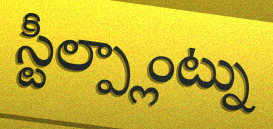
స్టీల్ప్లాంట్ను